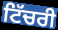
ਟਿੱਚਰੀ